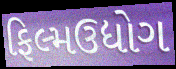
ફિલ્મઉદ્યોગ